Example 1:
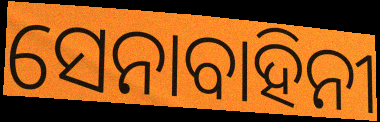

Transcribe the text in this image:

ସେନାବାହିନୀ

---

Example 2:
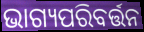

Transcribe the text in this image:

ଭାଗ୍ୟପରିବର୍ତ୍ତନ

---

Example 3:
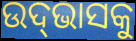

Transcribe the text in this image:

ଉଦ୍‌ଭାସକୁ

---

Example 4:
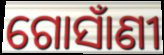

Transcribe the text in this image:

ଗୋସାଁଣୀ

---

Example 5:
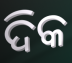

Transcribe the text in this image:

ଦିକ